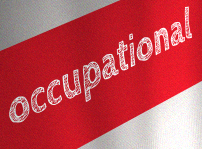
occupational